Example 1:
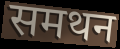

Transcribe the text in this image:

समथन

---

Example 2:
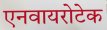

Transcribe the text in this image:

एनवायरोटेक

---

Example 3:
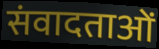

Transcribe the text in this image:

संवादताओं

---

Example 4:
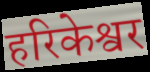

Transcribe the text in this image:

हरिकेश्वर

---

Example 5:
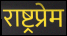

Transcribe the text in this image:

राष्ट्रप्रेम